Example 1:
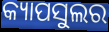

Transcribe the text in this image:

କ୍ୟାପସୁଲର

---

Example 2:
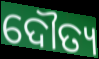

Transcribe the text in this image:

ଦୌତ୍ୟ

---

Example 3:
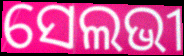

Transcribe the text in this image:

ସେଲଭୀ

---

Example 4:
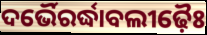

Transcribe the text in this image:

ଦର୍ଭୈରର୍ଦ୍ଧାବଲୀଢ଼ୈଃ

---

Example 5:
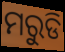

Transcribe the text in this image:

ମରୁଡି